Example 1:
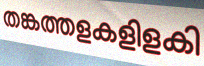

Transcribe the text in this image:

തങ്കത്തളകളിളകി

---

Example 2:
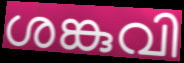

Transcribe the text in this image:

ശങ്കുവി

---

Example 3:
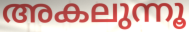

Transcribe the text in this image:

അകലുന്നൂ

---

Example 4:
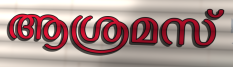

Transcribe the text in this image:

ആശ്രമസ്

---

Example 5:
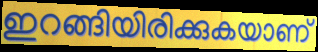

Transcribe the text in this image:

ഇറങ്ങിയിരിക്കുകയാണ്